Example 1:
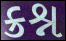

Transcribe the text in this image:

ક્રશ્ન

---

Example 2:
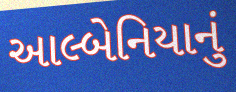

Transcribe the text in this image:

આલ્બેનિયાનું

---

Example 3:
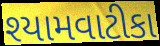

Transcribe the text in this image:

શ્યામવાટીકા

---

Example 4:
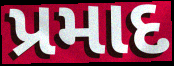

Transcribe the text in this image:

પ્રમાદ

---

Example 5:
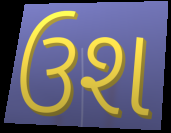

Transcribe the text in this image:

ઉશ